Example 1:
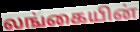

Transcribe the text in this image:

லங்கையின்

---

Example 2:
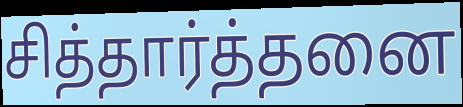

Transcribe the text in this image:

சித்தார்த்தனை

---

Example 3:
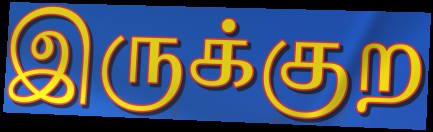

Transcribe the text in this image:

இருக்குற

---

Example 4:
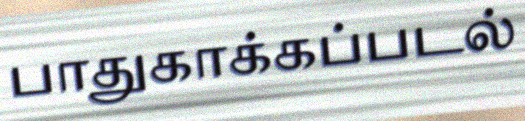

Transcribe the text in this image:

பாதுகாக்கப்படல்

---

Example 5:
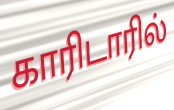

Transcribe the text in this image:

காரிடாரில்